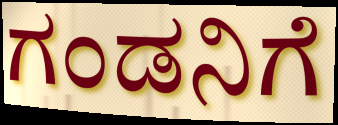
ಗಂಡನಿಗೆ